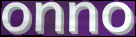
onno